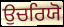
ਉਚਰਿਯੋ